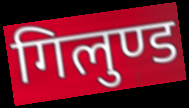
गिलुण्ड